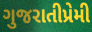
ગુજરાતીપ્રેમી